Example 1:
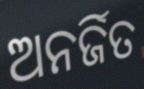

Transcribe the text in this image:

ଅନର୍ଜିତ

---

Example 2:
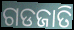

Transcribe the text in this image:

ଗଡଜାତି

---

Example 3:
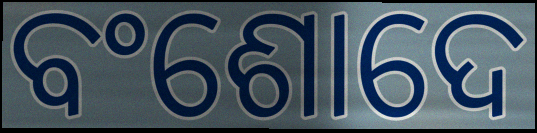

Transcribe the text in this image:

ବଂଶୋଦେ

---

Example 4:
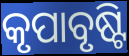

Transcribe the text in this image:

କୃପାବୃଷ୍ଟି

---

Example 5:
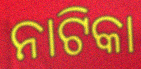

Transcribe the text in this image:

ନାଟିକା